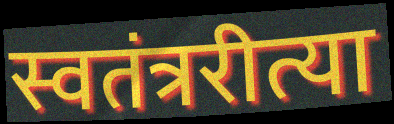
स्वतंत्ररीत्या